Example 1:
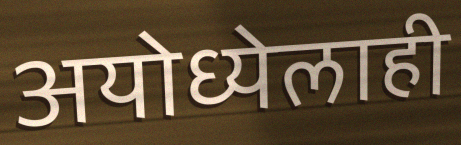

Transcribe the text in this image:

अयोध्येलाही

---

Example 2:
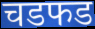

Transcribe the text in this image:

चडफड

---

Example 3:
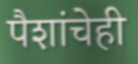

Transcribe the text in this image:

पैशांचेही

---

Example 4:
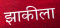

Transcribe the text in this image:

झाकीला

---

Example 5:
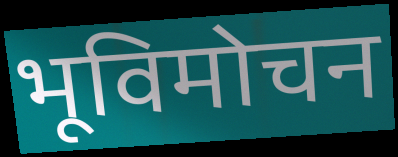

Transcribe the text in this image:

भूविमोचन